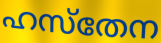
ഹസ്തേന